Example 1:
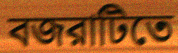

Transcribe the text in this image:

বজরাটিতে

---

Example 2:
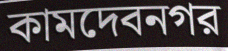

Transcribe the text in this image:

কামদেবনগর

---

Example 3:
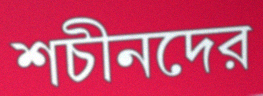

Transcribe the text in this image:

শচীনদের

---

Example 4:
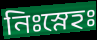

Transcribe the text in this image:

নিঃস্নেহঃ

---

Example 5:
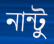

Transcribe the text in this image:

নান্টু